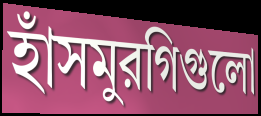
হাঁসমুরগিগুলো